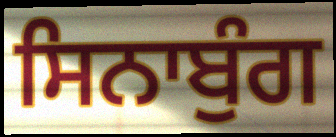
ਸਿਨਾਬੁੰਗ